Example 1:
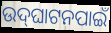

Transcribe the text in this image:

ଉଦ୍‌ଘାଟନପାଇଁ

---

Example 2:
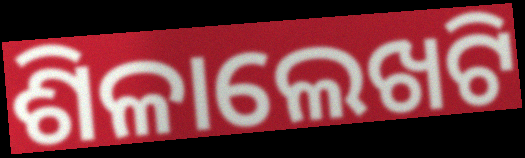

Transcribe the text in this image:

ଶିଳାଲେଖଟି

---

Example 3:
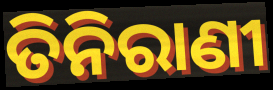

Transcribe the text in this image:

ତିନିରାଣୀ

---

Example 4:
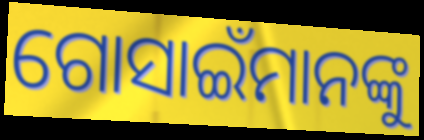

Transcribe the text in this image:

ଗୋସାଇଁମାନଙ୍କୁ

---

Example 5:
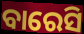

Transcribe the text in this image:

ବାରେସି